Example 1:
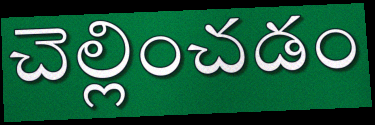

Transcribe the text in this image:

చెల్లించడం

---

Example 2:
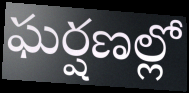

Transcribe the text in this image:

ఘర్షణల్లో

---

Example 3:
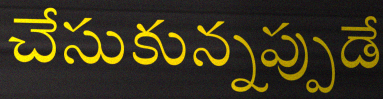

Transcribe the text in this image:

చేసుకున్నప్పుడే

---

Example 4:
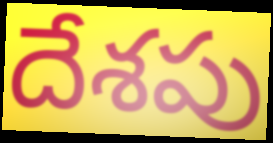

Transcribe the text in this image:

దేశపు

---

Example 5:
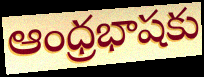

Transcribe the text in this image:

ఆంధ్రభాషకు